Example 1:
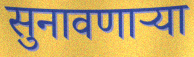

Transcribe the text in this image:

सुनावणाऱ्या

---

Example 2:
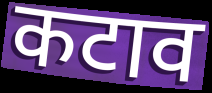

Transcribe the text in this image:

कटाव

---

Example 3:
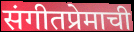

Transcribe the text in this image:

संगीतप्रेमाची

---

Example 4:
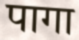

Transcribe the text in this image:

पागा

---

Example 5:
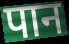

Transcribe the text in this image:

पान